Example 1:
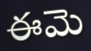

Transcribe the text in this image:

ఈమె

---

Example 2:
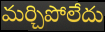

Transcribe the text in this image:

మర్చిపోలేదు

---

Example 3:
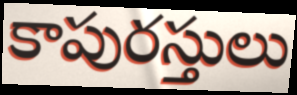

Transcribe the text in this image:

కాపురస్తులు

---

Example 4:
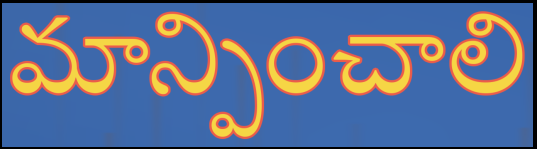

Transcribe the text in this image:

మాన్పించాలి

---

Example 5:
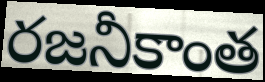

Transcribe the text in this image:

రజనీకాంత